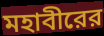
মহাবীরের